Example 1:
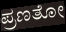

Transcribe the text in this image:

ಪ್ರಣತೋ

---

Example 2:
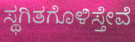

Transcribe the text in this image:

ಸ್ಥಗಿತಗೊಳಿಸ್ತೇವೆ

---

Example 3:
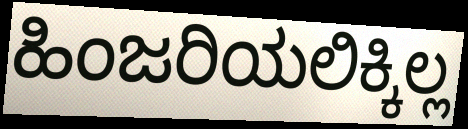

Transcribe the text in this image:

ಹಿಂಜರಿಯಲಿಕ್ಕಿಲ್ಲ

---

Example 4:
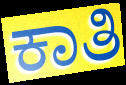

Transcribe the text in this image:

ಕಾತಿ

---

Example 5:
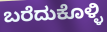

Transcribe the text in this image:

ಬರೆದುಕೊಳ್ಳಿ